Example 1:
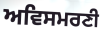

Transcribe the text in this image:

ਅਵਿਸਮਰਣੀ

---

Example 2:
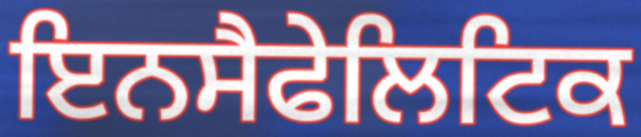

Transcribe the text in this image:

ਇਨਸੈਫੇਲਿਟਿਕ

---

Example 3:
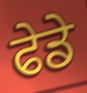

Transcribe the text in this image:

ਫੇਡੇ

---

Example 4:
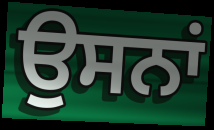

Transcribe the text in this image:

ਉਸਨਾਂ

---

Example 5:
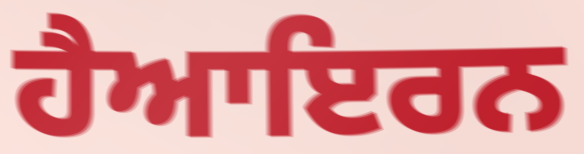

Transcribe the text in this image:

ਹੈਆਇਰਨ